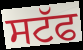
ਸਟੱਫ